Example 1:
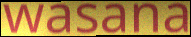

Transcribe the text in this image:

wasana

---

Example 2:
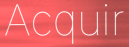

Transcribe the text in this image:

Acquir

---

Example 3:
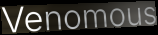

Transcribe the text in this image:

Venomous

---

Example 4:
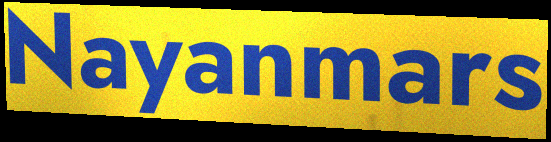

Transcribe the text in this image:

Nayanmars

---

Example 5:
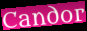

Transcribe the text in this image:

Candor